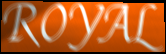
ROYAL